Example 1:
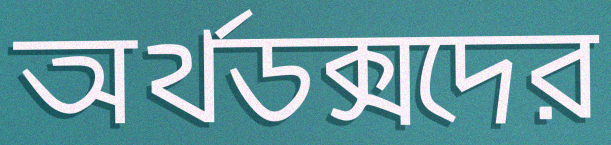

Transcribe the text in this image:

অর্থডক্সদের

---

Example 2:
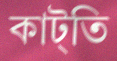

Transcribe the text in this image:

কাট্তি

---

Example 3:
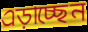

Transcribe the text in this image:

এড়াচ্ছেন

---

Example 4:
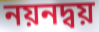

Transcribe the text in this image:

নয়নদ্বয়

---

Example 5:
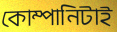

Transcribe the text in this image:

কোম্পানিটাই